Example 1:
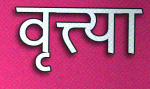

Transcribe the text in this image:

वृत्त्या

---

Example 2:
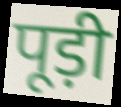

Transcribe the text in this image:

पूड़ी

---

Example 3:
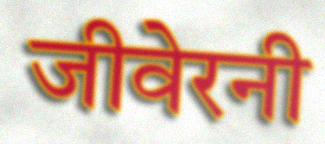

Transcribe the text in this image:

जीवेरनी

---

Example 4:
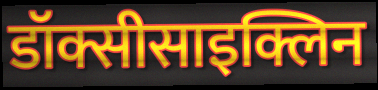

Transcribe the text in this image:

डॉक्सीसाइक्लिन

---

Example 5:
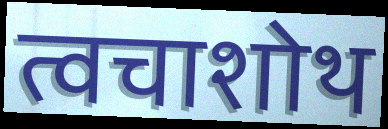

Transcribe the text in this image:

त्वचाशोथ